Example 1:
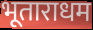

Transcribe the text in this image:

भूताराधम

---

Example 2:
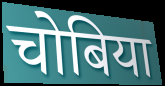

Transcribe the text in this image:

चोबिया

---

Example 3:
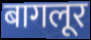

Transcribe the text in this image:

बागलूर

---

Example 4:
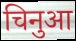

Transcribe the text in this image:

चिनुआ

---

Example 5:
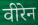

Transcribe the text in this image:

वीरेन